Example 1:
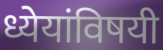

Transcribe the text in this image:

ध्येयांविषयी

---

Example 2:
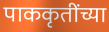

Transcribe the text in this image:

पाककृतींच्या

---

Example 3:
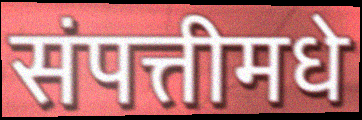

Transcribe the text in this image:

संपत्तीमधे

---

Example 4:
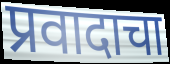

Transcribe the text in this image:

प्रवादाचा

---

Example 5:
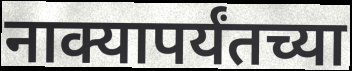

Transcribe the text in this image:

नाक्यापर्यंतच्या